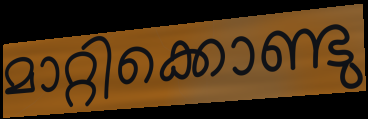
മാറ്റിക്കൊണ്ടു